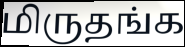
மிருதங்க